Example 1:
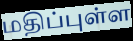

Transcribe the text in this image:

மதிப்புள்ள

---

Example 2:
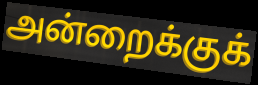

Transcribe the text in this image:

அன்றைக்குக்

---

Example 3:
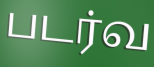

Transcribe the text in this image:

படர்வ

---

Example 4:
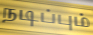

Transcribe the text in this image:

நடிப்பும்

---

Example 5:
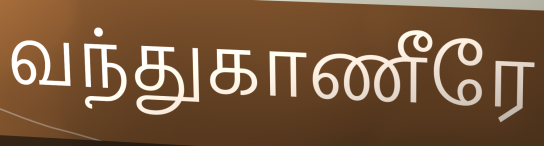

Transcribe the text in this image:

வந்துகாணீரே